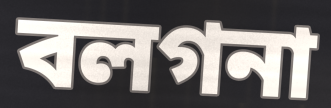
বলগনা